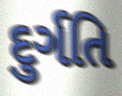
દુર્ગતિ